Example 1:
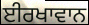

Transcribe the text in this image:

ਈਰਖਾਵਾਨ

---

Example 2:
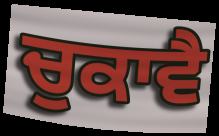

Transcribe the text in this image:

ਚੁਕਾਵੈ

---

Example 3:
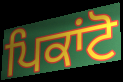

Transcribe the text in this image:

ਪਿਕਾਂਟੋ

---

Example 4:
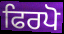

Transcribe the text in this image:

ਫਿਰਪੋ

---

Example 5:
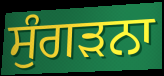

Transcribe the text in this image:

ਸੁੰਗੜਨਾ